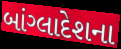
બાંગ્લાદેશના